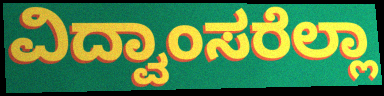
ವಿದ್ವಾಂಸರೆಲ್ಲಾ